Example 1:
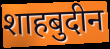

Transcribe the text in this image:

शाहबुदीन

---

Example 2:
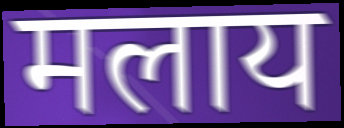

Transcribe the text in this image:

मलाय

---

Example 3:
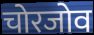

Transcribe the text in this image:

चोरजोव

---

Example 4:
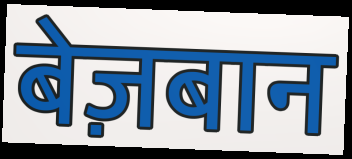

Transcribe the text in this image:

बेज़बान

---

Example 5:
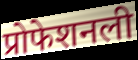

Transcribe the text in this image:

प्रोफेशनली